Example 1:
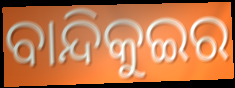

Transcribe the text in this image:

ବାନ୍ଦିକୁଇର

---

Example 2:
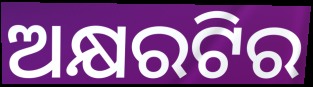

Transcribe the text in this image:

ଅକ୍ଷରଟିର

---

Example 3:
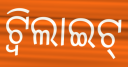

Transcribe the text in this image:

ଟ୍ୱିଲାଇଟ୍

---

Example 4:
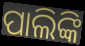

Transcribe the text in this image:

ପାଲିଙ୍କି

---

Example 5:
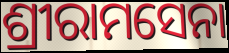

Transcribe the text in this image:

ଶ୍ରୀରାମସେନା